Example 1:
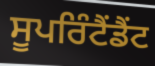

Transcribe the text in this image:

ਸੂਪਰਿੰਟੈਂਡੈਂਟ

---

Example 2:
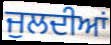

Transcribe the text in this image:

ਜੁਲਦੀਆਂ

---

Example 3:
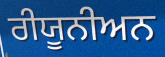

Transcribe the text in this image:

ਰੀਯੂਨੀਅਨ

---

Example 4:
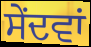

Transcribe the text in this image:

ਸੇਂਦਵਾਂ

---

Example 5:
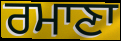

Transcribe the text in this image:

ਰਮਾਣਾ